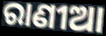
ରାଣୀଆ